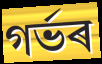
গৰ্ভৰ